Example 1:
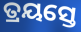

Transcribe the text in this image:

ତ୍ରୟସ୍ତେ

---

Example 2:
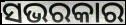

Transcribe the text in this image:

ସଭରକାର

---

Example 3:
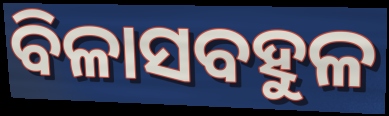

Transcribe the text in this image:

ବିଳାସବହୁଳ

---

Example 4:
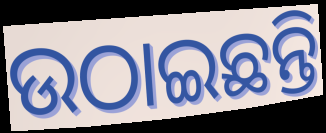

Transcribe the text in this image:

ଉଠାଇଛନ୍ତି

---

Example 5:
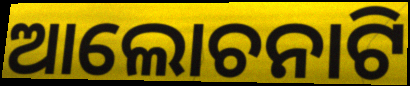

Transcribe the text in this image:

ଆଲୋଚନାଟି